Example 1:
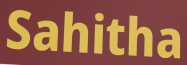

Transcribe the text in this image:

Sahitha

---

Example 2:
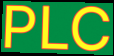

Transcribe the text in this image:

PLC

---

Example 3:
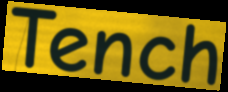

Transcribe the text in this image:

Tench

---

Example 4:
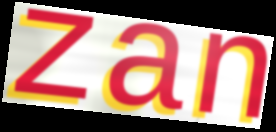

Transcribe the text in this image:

zan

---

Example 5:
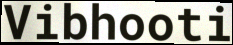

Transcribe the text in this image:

Vibhooti